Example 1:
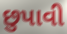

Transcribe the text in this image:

છુપાવી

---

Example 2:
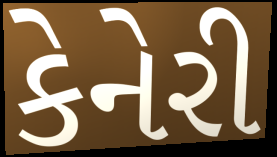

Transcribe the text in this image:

કેનેરી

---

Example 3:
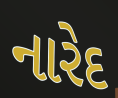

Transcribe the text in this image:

નારેદ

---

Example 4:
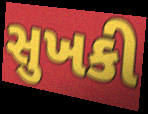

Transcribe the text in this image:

સુખકી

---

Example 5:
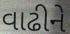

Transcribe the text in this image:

વાઢીને